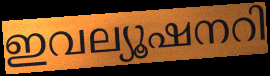
ഇവല്യൂഷനറി